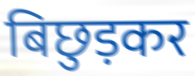
बिछुड़कर